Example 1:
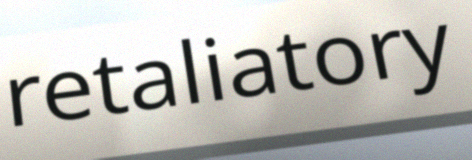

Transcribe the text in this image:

retaliatory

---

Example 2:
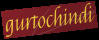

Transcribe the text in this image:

gurtochindi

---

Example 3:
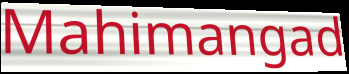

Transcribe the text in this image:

Mahimangad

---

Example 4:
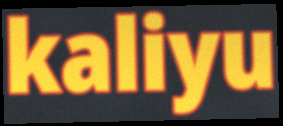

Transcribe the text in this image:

kaliyu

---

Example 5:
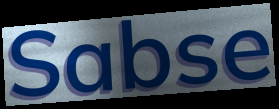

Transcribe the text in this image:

Sabse